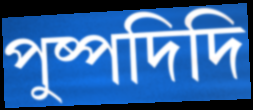
পুষ্পদিদি